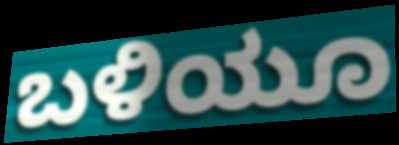
ಬಳಿಯೂ